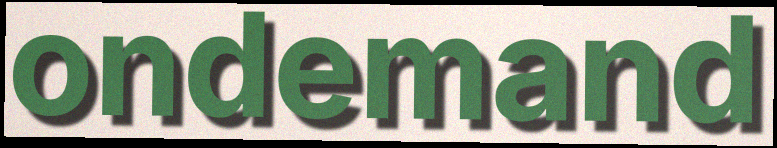
ondemand